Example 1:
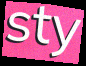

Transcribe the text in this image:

sty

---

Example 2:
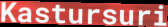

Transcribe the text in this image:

Kastursuri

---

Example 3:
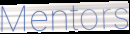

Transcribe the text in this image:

Mentors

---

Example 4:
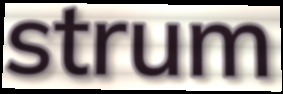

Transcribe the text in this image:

strum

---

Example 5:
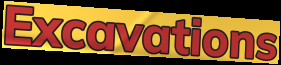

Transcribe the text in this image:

Excavations